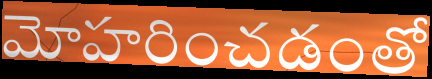
మోహరించడంతో